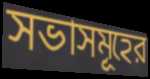
সভাসমূহের